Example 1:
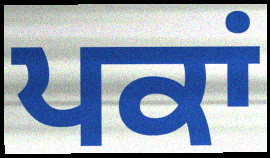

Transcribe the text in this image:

ਪਕਾਂ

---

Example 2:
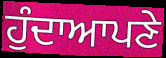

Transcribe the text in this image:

ਹੁੰਦਾਆਪਣੇ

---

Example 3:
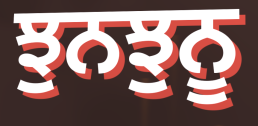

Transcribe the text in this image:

ਝੁਨਝੁਨੂ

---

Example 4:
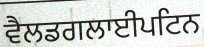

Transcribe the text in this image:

ਵੈਲਡਗਲਾਈਪਟਿਨ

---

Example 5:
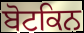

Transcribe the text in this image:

ਬੋਟਕਿਨ